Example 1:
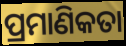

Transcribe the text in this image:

ପ୍ରମାଣିକତା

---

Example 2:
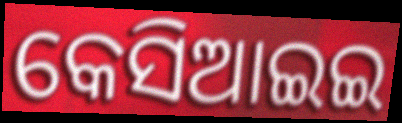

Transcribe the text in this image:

କେସିଆଇଇ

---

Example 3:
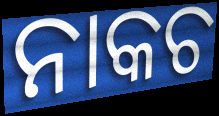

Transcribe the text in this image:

ନାକଚ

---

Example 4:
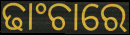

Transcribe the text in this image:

ଢାଂଚାରେ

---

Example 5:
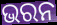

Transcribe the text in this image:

ଭରନ